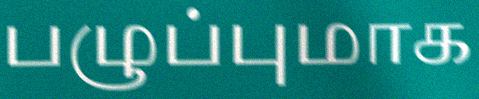
பழுப்புமாக